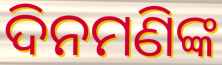
ଦିନମଣିଙ୍କ